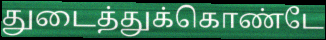
துடைத்துக்கொண்டே